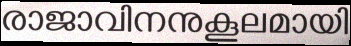
രാജാവിനനുകൂലമായി